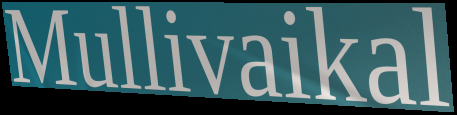
Mullivaikal